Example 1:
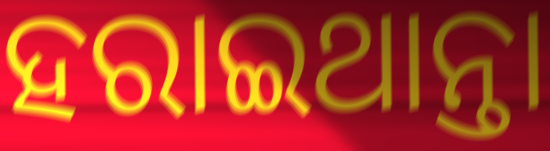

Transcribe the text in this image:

ହରାଇଥାନ୍ତା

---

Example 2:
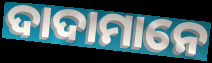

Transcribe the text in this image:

ଦାଦାମାନେ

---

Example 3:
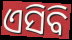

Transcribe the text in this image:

ଏସିବି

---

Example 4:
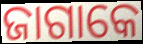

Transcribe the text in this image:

ଜାଗାକେ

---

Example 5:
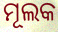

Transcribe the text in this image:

ମୂଲକ